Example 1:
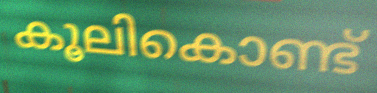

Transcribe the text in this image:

കൂലികൊണ്ട്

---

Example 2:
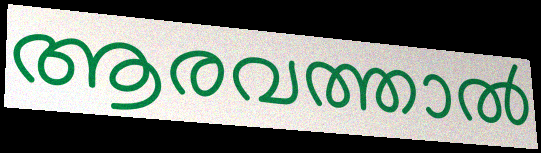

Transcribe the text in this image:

ആരവത്താൽ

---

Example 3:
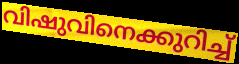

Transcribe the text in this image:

വിഷുവിനെക്കുറിച്ച്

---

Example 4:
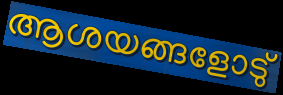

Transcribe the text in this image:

ആശയങ്ങളോടു്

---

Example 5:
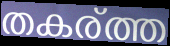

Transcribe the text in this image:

തകര്ത്ത